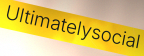
Ultimatelysocial